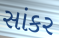
સાંકર